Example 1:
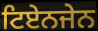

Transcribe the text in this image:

ਟਿਏਨਜੇਨ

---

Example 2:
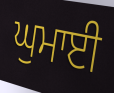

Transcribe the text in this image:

ਘੁਮਾਈ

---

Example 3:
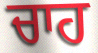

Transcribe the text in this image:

ਚਾਹ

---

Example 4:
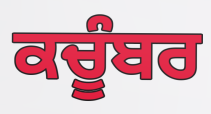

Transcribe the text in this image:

ਕਚੂੰਬਰ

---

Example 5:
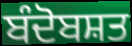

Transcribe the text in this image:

ਬੰਦੋਬਸ਼ਤ